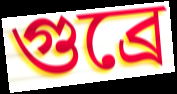
গুব্রে